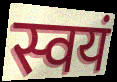
स्‍वयं